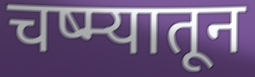
चष्म्यातून